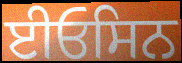
ਈਓਸਿਨ